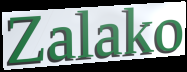
Zalako